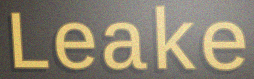
Leake